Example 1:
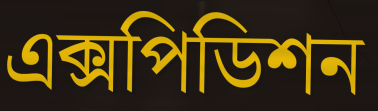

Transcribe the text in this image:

এক্সপিডিশন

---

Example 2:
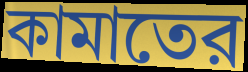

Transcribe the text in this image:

কামাতের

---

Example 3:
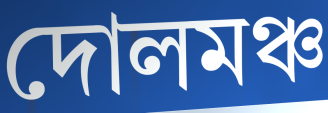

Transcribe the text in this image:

দোলমঞ্চ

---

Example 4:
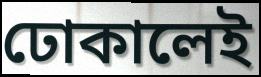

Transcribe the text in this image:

ঢোকালেই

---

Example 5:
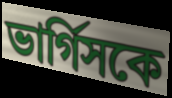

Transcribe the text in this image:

ভার্গিসকে